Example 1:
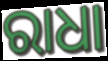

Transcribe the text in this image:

ରାଧା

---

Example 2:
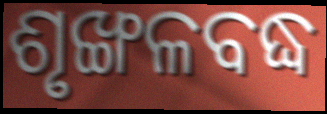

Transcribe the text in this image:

ଶୃଙ୍ଖଳବଦ୍ଧ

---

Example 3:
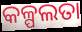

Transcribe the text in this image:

କଳ୍ପଲତା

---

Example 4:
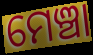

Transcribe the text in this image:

ମେଞ୍ଚା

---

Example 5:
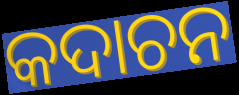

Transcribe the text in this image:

କଦାଚନ